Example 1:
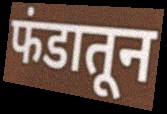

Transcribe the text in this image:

फंडातून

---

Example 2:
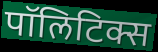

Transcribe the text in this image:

पॉलिटिक्स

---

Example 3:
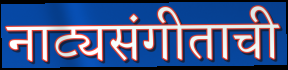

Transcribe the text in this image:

नाट्यसंगीताची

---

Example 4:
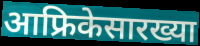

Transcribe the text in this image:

आफ्रिकेसारख्या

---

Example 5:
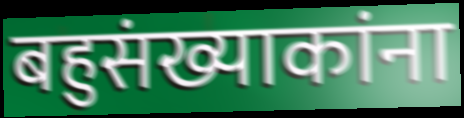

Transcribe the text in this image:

बहुसंख्याकांना